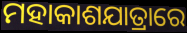
ମହାକାଶଯାତ୍ରାରେ